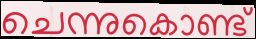
ചെന്നുകൊണ്ട്